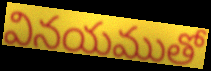
వినయముతో